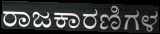
ರಾಜಕಾರಣಿಗಳ